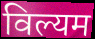
विल्यम